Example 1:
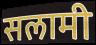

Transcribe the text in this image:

सलामी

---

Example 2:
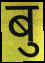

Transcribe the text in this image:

बु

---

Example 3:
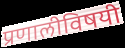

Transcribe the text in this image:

प्रणालीविषयी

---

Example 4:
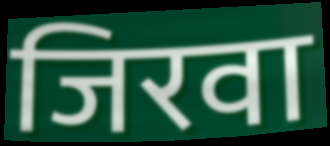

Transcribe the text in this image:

जिरवा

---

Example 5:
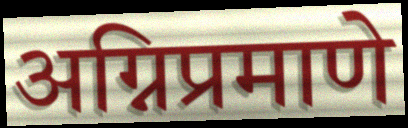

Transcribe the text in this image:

अग्निप्रमाणे